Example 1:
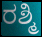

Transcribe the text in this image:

ರಶ್ಮಿ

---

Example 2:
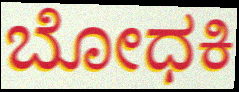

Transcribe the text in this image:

ಬೋಧಕಿ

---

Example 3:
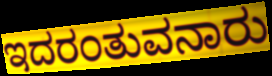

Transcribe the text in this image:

ಇದರಂತುವನಾರು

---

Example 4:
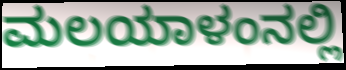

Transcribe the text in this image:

ಮಲಯಾಳಂನಲ್ಲಿ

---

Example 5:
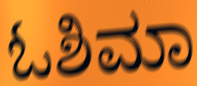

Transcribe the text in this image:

ಓಶಿಮಾ